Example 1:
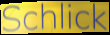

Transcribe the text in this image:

Schlick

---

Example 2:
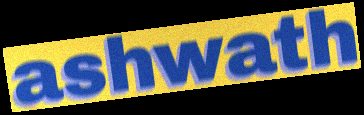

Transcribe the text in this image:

ashwath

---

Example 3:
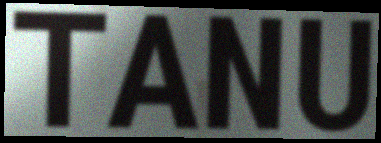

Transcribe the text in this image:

TANU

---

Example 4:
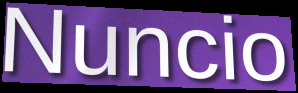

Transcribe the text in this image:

Nuncio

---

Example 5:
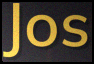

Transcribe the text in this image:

Jos